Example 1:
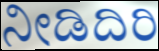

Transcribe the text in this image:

ನೀಡಿದಿರಿ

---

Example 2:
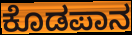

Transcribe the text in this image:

ಕೊಡಪಾನ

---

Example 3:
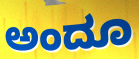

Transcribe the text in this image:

ಅಂದೂ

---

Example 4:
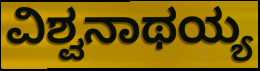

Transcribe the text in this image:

ವಿಶ್ವನಾಥಯ್ಯ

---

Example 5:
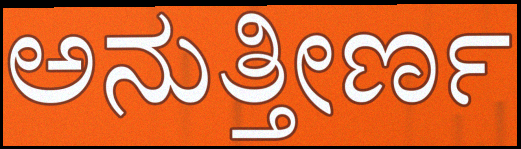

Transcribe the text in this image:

ಅನುತ್ತೀರ್ಣ